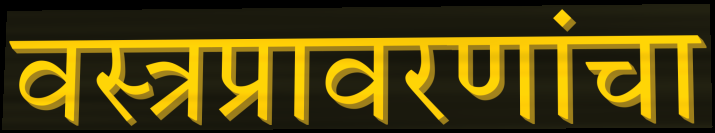
वस्त्रप्रावरणांचा